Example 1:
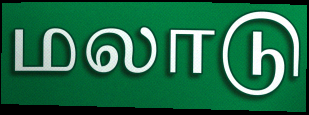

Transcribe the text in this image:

மலாடு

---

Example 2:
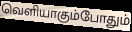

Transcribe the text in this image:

வெளியாகும்போதும்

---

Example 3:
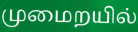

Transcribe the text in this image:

முமைறயில்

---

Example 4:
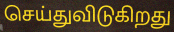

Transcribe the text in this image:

செய்துவிடுகிறது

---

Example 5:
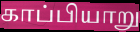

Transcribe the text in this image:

காப்பியாறு